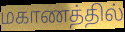
மகாணத்தில்